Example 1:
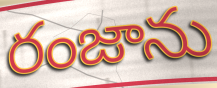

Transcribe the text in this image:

రంజాను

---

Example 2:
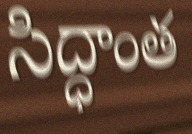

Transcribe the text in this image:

సిద్ధాంత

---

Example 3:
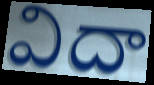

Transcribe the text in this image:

విదా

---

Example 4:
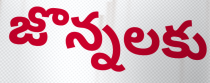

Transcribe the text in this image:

జొన్నలకు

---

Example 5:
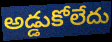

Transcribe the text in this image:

అడ్డుకోలేదు